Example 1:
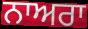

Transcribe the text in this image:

ਨਾਅਰਾ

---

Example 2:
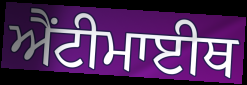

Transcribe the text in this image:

ਐਂਟੀਮਾਈਥ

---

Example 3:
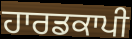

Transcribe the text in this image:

ਹਾਰਡਕਾਪੀ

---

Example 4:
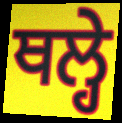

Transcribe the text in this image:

ਥਲ੍ਹੇ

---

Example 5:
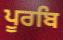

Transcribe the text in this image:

ਪੂਰਬਿ